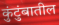
कुंटुंबातील